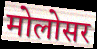
मोलोसर